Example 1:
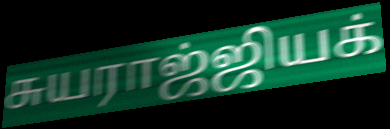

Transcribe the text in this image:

சுயராஜ்ஜியக்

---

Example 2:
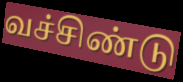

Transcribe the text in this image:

வச்சிண்டு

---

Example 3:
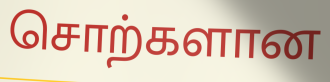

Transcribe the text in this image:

சொற்களான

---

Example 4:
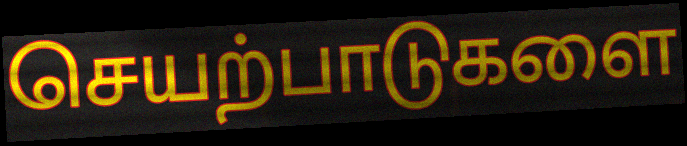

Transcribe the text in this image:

செயற்பாடுகளை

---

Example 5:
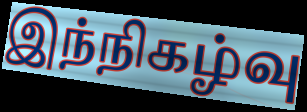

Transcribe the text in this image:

இந்நிகழ்வு